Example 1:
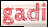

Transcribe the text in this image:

gadi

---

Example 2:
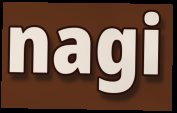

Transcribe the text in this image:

nagi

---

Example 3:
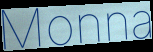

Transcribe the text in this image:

Monna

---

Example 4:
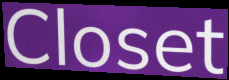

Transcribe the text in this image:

Closet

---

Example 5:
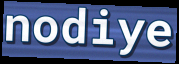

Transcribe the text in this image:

nodiye